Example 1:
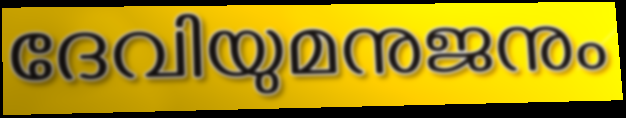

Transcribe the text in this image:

ദേവിയുമനുജനും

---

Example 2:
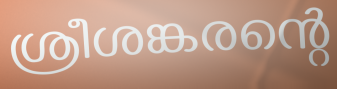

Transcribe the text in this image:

ശ്രീശങ്കരന്റെ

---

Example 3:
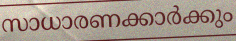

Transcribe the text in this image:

സാധാരണക്കാർക്കും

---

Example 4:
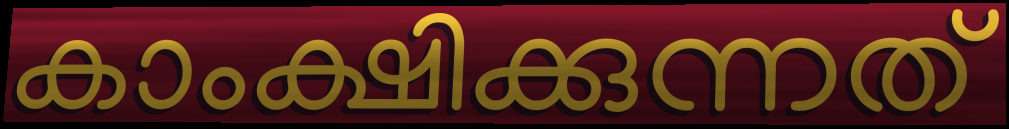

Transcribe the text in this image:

കാംക്ഷിക്കുന്നത്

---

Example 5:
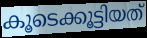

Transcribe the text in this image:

കൂടെക്കൂട്ടിയത്